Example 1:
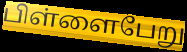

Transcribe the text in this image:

பிள்ளைபேறு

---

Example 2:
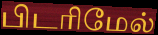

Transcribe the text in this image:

பிடரிமேல்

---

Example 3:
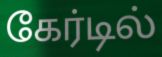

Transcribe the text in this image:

கேர்டில்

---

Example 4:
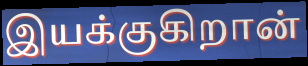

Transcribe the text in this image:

இயக்குகிறான்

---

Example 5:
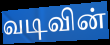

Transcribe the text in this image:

வடிவின்